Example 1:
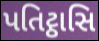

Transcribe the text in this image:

પતિટ્ઠાસિ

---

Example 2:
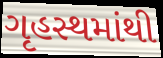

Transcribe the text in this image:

ગૃહસ્થમાંથી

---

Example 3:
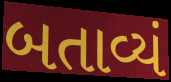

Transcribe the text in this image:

બતાવ્યં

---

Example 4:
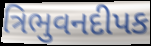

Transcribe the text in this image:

ત્રિભુવનદીપક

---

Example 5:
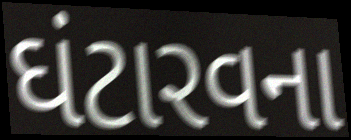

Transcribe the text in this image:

ઘંટારવના